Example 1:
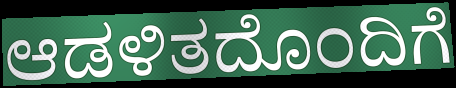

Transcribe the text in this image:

ಆಡಳಿತದೊಂದಿಗೆ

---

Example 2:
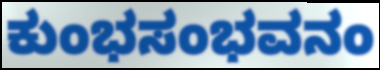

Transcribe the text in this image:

ಕುಂಭಸಂಭವನಂ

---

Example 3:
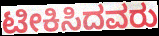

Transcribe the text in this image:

ಟೀಕಿಸಿದವರು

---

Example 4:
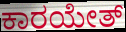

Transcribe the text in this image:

ಕಾರಯೇತ್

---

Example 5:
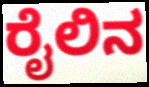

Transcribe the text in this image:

ರೈಲಿನ